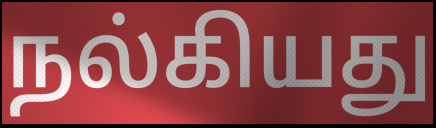
நல்கியது